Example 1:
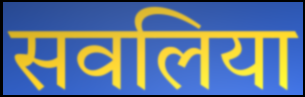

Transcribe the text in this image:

सवलिया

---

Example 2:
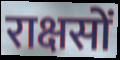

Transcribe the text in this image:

राक्षसों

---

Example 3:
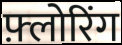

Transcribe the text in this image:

फ़्लोरिंग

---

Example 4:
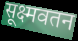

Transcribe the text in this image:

सूक्ष्मवतन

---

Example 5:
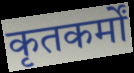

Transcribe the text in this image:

कृतकर्मों